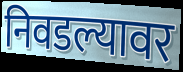
निवडल्यावर